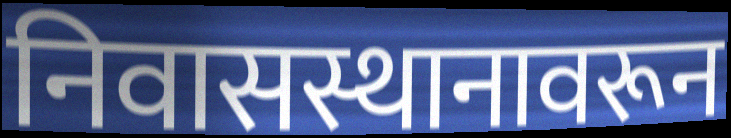
निवासस्थानावरून